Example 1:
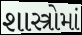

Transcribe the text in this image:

શાસ્ત્રોમાં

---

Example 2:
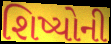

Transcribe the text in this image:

શિષ્યોની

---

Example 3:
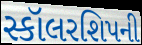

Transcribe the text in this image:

સ્કૉલરશિપની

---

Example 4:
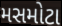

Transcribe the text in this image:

મસમોટા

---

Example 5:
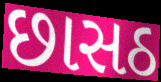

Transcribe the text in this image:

છાસઠ